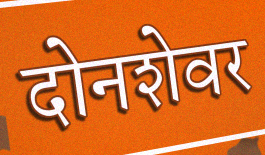
दोनशेवर